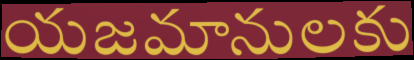
యజమానులకు